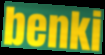
benki